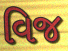
વિજ